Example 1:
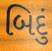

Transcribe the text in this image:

બિદું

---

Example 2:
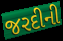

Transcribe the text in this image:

જરદીની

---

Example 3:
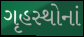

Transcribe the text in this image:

ગૃહસ્થોનાં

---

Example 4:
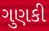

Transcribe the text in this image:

ગુણકી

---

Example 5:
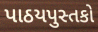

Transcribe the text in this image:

પાઠયપુસ્તકો